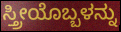
ಸ್ತ್ರೀಯೊಬ್ಬಳನ್ನು